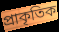
প্ৰাকৃতিক